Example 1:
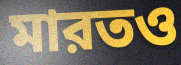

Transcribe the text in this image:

মারতও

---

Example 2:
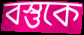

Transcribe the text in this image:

বস্তুকে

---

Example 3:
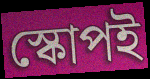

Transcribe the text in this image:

স্কোপই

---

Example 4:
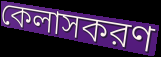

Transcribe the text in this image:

কেলাসকরণ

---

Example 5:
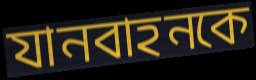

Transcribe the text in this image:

যানবাহনকে